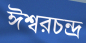
ঈশ্বরচন্দ্র